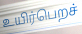
உயிர்பெறச்